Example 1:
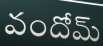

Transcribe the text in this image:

వందోమ్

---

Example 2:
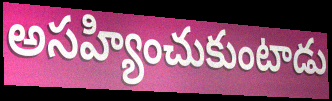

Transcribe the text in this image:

అసహ్యించుకుంటాడు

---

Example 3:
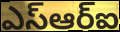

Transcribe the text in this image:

ఎస్ఆర్ఐ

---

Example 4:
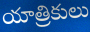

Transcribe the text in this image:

యాత్రికులు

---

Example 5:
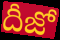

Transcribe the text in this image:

దీజో